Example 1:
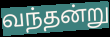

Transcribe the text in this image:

வந்தன்று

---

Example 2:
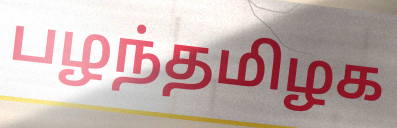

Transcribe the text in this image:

பழந்தமிழக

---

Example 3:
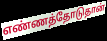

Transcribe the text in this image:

எண்ணத்தோடுதான்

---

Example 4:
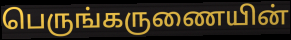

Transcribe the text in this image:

பெருங்கருணையின்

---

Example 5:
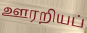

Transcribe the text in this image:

ஊரறியப்